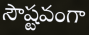
సౌష్టవంగా